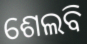
ଶେଲବି